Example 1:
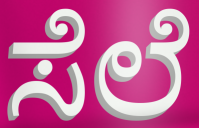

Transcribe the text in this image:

ಸೆಲೆ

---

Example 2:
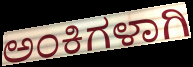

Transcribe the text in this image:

ಅಂಕಿಗಳಾಗಿ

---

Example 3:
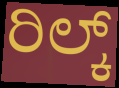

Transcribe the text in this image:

ರಿಲ್ಕ್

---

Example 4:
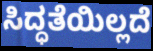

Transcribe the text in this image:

ಸಿದ್ಧತೆಯಿಲ್ಲದೆ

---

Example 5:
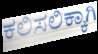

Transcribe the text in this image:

ಕಲಿಸಲಿಕ್ಕಾಗಿ